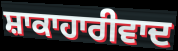
ਸ਼ਾਕਾਹਾਰੀਵਾਦ